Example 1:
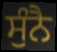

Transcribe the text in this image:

ਸੁੰਨੈ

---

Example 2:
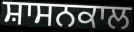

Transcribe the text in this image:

ਸ਼ਾਸਨਕਾਲ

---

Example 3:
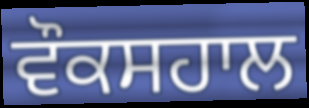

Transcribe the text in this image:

ਵੌਕਸਹਾਲ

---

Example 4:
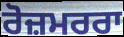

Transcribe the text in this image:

ਰੋਜ਼ਮਰਰਾ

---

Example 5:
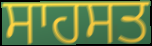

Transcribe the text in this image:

ਸਾਹਸਤ